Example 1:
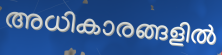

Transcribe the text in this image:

അധികാരങ്ങളിൽ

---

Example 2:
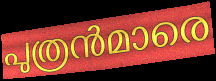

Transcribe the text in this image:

പുത്രൻമാരെ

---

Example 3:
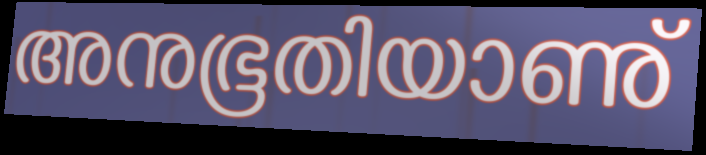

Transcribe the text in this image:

അനുഭൂതിയാണു്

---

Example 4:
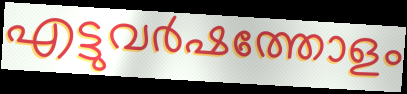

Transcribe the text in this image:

എട്ടുവർഷത്തോളം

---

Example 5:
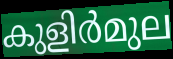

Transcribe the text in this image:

കുളിർമുല